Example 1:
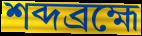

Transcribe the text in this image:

শব্দব্রহ্মে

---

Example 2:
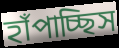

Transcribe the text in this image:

হাঁপাচ্ছিস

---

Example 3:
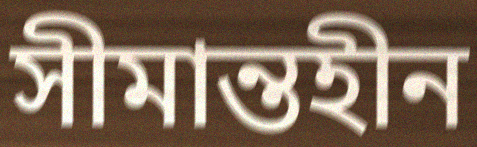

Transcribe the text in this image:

সীমান্তহীন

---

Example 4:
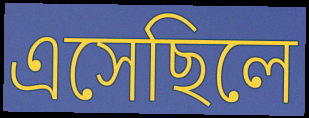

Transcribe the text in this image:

এসেছিলে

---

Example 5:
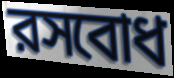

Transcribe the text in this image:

রসবোধ